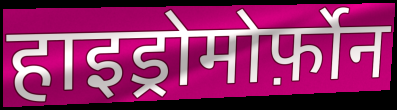
हाइड्रोमोर्फ़ोन